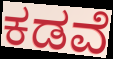
ಕಡವೆ